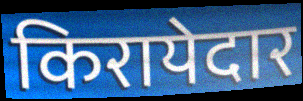
किरायेदार